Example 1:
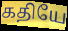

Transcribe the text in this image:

கதியே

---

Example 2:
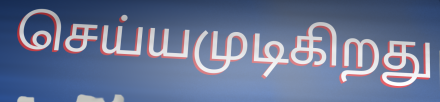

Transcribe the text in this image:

செய்யமுடிகிறது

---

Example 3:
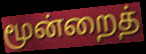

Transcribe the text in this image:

மூன்றைத்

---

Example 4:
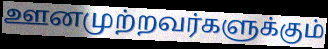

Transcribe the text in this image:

ஊனமுற்றவர்களுக்கும்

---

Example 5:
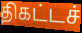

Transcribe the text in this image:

திகட்டச்